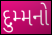
દુમ્મનો